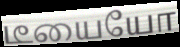
டீயையோ